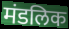
मंडलिक